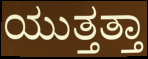
ಯುತ್ತತ್ತಾ